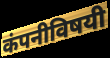
कंपनीविषयी